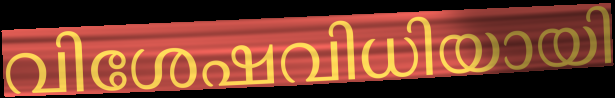
വിശേഷവിധിയായി